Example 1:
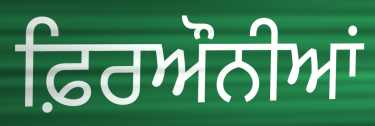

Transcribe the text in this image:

ਫ਼ਿਰਔਨੀਆਂ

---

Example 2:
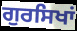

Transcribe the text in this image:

ਗੁਰਸਿਖਾਂ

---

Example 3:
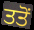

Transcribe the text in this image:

ਤਤੋਂ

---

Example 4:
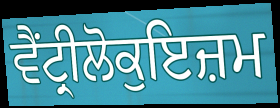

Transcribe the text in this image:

ਵੈਂਟ੍ਰੀਲੋਕੁਇਜ਼ਮ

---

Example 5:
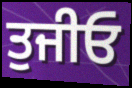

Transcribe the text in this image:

ਤੁਜੀਓ